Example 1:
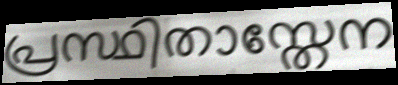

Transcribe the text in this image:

പ്രസ്ഥിതാസ്തേന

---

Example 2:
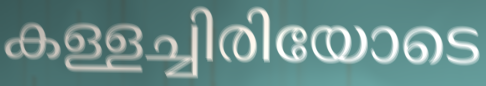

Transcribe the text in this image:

കള്ളച്ചിരിയോടെ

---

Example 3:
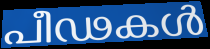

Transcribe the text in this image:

പീഢകൾ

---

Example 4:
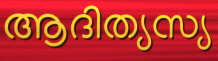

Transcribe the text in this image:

ആദിത്യസ്യ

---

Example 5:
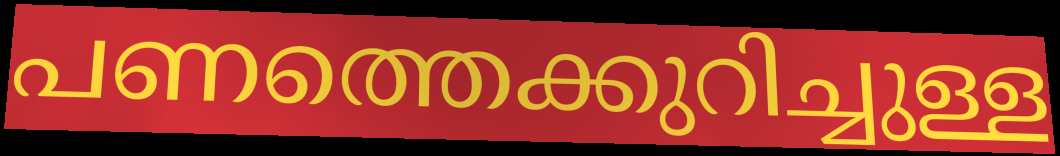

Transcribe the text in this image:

പണത്തെക്കുറിച്ചുള്ള